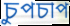
চুপচাপ